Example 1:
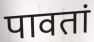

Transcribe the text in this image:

पावतां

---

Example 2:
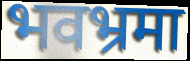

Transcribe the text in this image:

भवभ्रमा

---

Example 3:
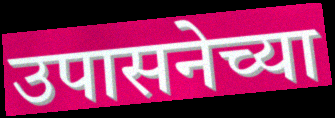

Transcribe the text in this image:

उपासनेच्या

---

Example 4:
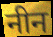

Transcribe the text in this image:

नीन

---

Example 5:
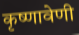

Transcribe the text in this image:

कृष्णावेणी